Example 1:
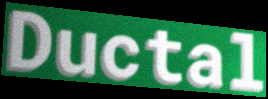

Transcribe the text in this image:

Ductal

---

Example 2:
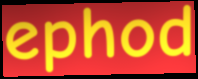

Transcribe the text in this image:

ephod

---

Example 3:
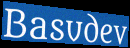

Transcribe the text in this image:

Basudev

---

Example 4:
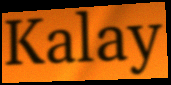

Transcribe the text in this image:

Kalay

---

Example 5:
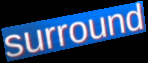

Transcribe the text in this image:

surround